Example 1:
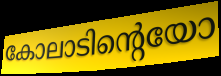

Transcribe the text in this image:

കോലാടിന്റെയോ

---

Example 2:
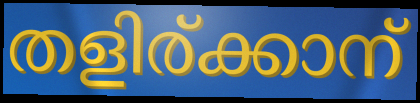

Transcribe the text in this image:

തളിര്ക്കാന്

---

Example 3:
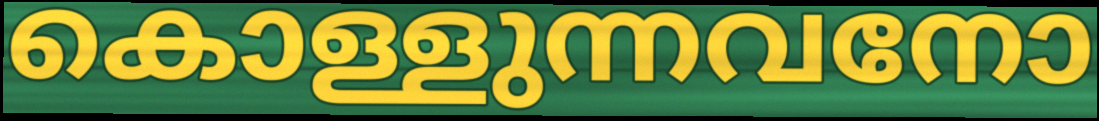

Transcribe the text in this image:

കൊള്ളുന്നവനോ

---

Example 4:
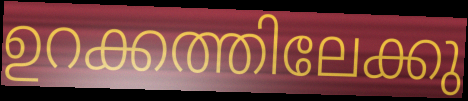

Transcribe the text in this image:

ഉറക്കത്തിലേക്കു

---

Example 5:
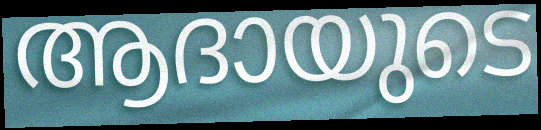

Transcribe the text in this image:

ആദായുടെ